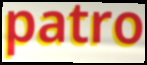
patro